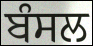
ਬੰਸਲ